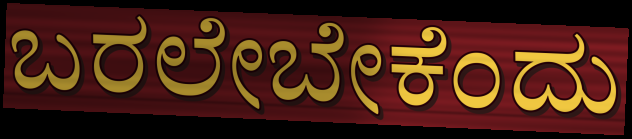
ಬರಲೇಬೇಕೆಂದು